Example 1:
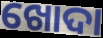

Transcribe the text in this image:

ଖୋଦା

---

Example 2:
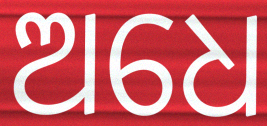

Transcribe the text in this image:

ଅଧେ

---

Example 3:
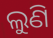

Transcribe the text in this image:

ଲୁଣି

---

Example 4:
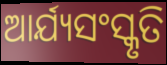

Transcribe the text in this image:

ଆର୍ଯ୍ୟସଂସ୍କୃତି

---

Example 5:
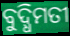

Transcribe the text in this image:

ବୁଦ୍ଧିମତୀ